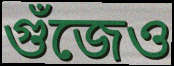
গুঁজেও